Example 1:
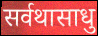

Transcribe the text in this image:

सर्वथासाधु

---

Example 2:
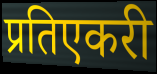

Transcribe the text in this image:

प्रतिएकरी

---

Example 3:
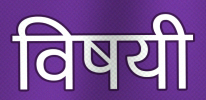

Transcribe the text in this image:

विषयी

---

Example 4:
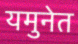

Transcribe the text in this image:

यमुनेत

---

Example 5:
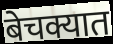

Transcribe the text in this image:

बेचक्यात